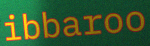
ibbaroo